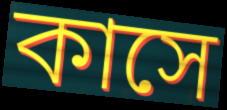
কাসে